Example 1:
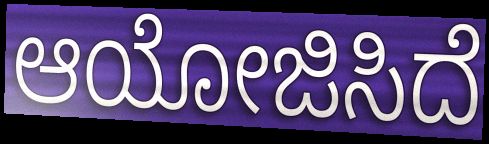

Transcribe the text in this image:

ಆಯೋಜಿಸಿದೆ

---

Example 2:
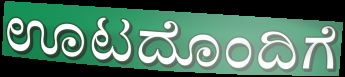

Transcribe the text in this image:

ಊಟದೊಂದಿಗೆ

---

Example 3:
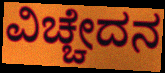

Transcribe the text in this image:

ವಿಚ್ಚೇದನ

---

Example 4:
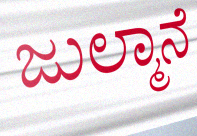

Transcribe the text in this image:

ಜುಲ್ಮಾನೆ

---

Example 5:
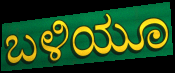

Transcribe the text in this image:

ಬಳಿಯೂ